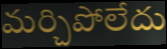
మర్చిపోలేదు